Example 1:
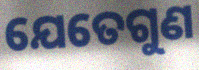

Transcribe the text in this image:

ଯେତେଗୁଣ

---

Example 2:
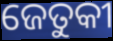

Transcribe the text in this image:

ଜେତୁକୀ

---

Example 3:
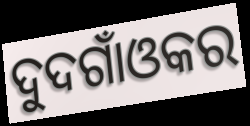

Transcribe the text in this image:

ଦୁଦଗାଁଓକର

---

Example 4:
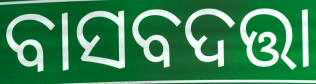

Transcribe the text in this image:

ବାସବଦତ୍ତା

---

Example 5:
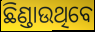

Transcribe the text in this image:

ଛିଣ୍ଡାଉଥିବେ